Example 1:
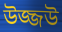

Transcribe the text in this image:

উজ্জউ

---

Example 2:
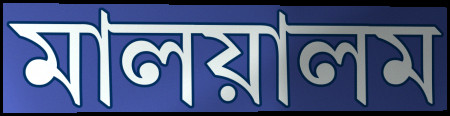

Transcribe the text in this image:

মালয়ালম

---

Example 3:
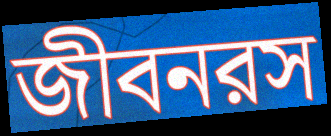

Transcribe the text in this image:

জীবনরস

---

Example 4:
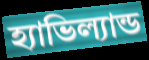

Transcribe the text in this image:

হ্যাভিল্যান্ড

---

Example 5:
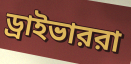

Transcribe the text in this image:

ড্রাইভাররা